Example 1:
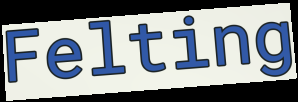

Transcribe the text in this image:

Felting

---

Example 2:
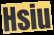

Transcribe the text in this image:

Hsiu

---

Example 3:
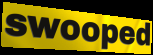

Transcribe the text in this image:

swooped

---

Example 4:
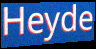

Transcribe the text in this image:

Heyde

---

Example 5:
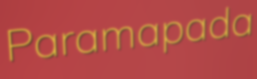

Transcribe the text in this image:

Paramapada